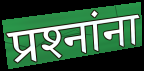
प्रश्‍नांना